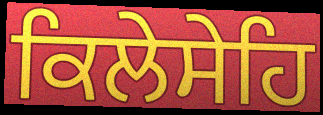
ਕਿਲੇਸੇਹਿ